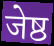
जेष्ठ